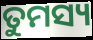
ତୁମସ୍ୟ